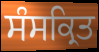
ਸੰਸਕ੍ਰਿਤ